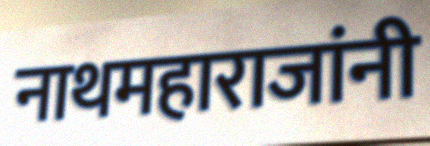
नाथमहाराजांनी